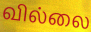
வில்லை